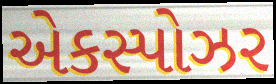
એકસ્પોઝર